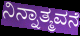
ನಿನ್ನಾತ್ಮವನೆ